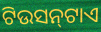
ଟିଉସନ୍‍ଟାଏ